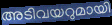
അടിവയറുമായി